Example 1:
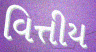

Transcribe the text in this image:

વિત્તીય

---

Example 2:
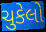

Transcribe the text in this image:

ચુકેલો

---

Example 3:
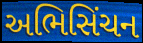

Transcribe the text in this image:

અભિસિંચન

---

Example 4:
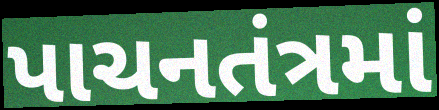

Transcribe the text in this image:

પાચનતંત્રમાં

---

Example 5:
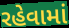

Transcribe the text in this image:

રહેવામાં